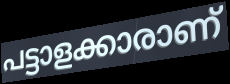
പട്ടാളക്കാരാണ്